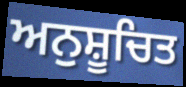
ਅਨੁਸ਼ੂਚਿਤ